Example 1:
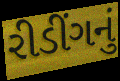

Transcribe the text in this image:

રીડીંગનું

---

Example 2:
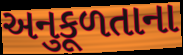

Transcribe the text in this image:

અનુકૂળતાના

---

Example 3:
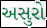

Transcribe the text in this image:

અસુરો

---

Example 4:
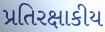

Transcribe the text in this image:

પ્રતિરક્ષાકીય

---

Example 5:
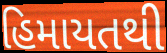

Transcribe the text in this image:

હિમાયતથી